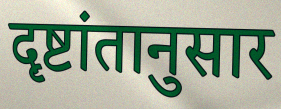
दृष्टांतानुसार